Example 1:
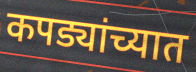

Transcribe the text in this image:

कपड्यांच्यात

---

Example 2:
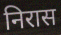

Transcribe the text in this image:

निरास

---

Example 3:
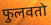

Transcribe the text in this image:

फुलवतो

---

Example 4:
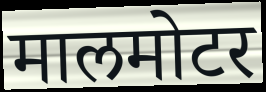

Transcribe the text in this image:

मालमोटर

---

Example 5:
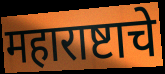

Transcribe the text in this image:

महाराष्टाचे